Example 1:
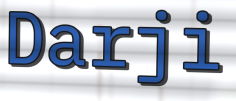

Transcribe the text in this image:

Darji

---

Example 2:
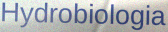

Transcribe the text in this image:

Hydrobiologia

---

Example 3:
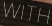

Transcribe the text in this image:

WITH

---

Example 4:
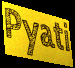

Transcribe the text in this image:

Pyati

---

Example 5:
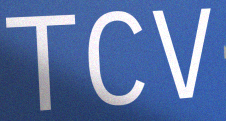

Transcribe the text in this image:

TCV